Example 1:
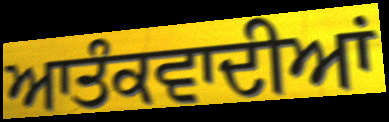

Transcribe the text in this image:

ਆਤੰਕਵਾਦੀਆਂ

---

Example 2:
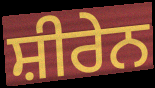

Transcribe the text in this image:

ਸ਼ੀਰੇਨ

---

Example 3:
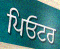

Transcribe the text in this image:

ਪਿਓਟਰ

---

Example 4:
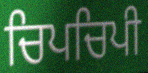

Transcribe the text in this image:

ਚਿਪਚਿਪੀ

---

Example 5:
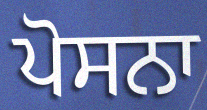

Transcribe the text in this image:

ਪੋਸਨਾ